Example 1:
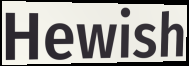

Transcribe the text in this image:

Hewish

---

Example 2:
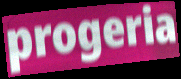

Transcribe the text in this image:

progeria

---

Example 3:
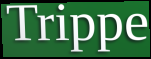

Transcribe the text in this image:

Trippe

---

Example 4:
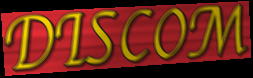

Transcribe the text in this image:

DISCOM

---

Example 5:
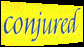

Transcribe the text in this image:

conjured